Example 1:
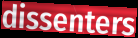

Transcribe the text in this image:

dissenters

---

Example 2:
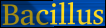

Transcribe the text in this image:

Bacillus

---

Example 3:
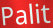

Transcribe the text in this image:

Palit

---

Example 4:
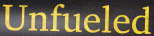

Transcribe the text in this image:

Unfueled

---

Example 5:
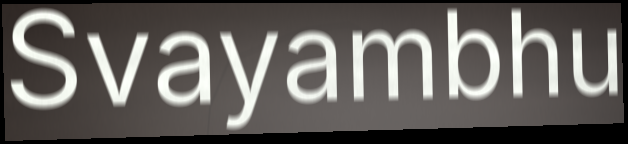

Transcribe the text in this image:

Svayambhu